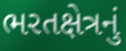
ભરતક્ષેત્રનું